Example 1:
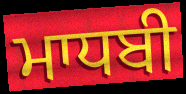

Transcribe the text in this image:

ਮਾਧਬੀ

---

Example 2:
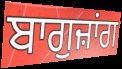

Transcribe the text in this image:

ਬਾਗੁਜ਼ਾਂਗ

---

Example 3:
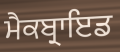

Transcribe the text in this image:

ਮੈਕਬ੍ਰਾਇਡ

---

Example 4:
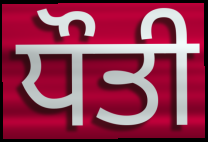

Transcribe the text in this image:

ਧੌਤੀ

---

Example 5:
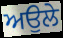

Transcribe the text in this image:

ਅਉਲੇ